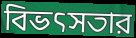
বিভৎসতার